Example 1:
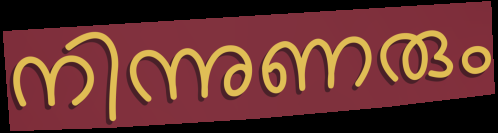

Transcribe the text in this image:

നിന്നുണരും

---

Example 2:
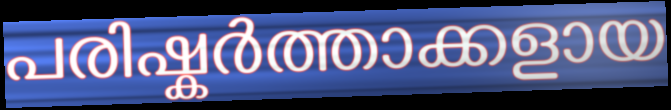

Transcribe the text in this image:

പരിഷ്കർത്താക്കളായ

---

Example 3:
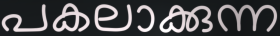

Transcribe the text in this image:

പകലാക്കുന്ന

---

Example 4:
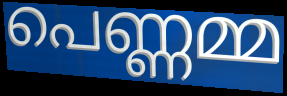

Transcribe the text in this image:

പെണ്ണമ്മ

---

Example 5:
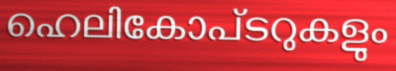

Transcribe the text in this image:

ഹെലികോപ്ടറുകളും